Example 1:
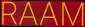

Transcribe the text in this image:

RAAM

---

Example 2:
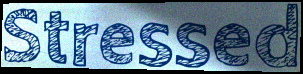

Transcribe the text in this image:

Stressed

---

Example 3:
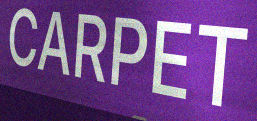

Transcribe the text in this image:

CARPET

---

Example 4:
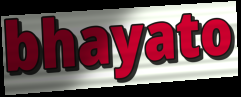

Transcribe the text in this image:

bhayato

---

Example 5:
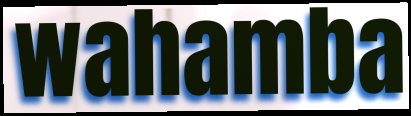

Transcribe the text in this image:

wahamba